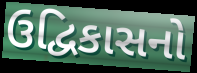
ઉદ્વિકાસનો